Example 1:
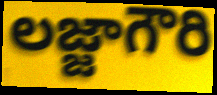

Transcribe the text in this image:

లజ్జాగౌరి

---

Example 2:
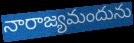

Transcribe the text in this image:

నారాజ్యమందును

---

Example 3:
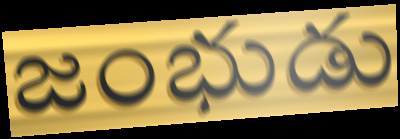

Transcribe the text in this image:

జంభుడు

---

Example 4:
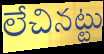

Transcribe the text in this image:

లేచినట్టు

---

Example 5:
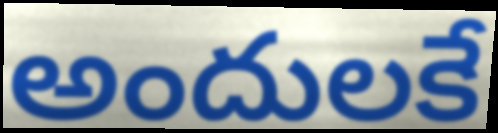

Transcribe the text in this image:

అందులకే